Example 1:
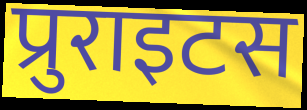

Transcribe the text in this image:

प्रुराइटस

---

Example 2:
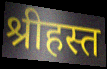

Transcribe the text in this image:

श्रीहस्त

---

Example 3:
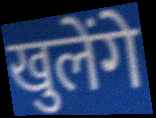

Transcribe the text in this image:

खुलेंगे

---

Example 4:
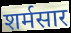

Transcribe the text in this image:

शर्मसार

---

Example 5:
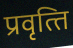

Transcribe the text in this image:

प्रवृत्‍ति